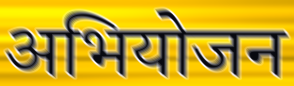
अभियोजन